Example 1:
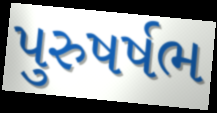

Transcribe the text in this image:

પુરુષર્ષભ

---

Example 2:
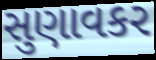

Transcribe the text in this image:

સુણાવકર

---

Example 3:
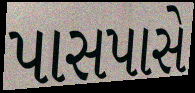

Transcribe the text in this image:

પાસપાસે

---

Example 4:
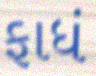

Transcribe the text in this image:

ફાધં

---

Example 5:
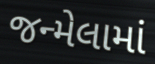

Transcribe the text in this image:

જન્મેલામાં